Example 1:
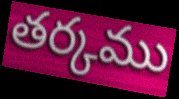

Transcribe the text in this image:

తర్కము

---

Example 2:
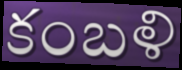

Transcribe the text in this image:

కంబళి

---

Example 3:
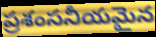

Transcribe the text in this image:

ప్రశంసనీయమైన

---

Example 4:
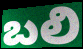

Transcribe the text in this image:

బలి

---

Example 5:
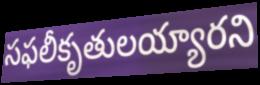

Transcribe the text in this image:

సఫలీకృతులయ్యారని